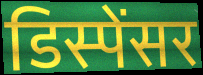
डिस्पेंसर